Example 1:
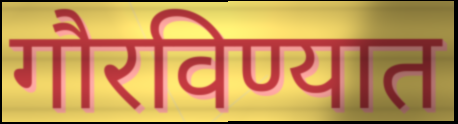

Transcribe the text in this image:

गौरविण्यात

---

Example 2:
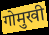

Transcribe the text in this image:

गोमुखी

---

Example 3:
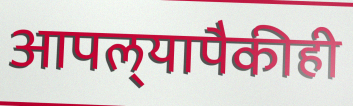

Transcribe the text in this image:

आपल्यापैकीही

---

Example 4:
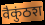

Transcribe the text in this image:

वैकुंठश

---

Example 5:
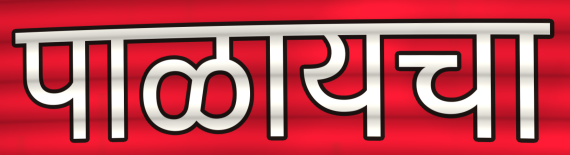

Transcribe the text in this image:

पाळायचा